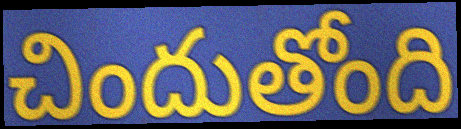
చిందుతోంది